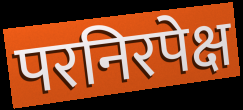
परनिरपेक्ष